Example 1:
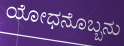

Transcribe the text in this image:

ಯೋಧನೊಬ್ಬನು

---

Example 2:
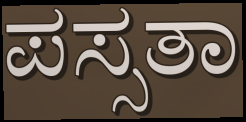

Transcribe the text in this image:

ಪಸ್ಸತಾ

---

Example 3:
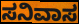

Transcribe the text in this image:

ಸನಿವಾಸ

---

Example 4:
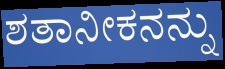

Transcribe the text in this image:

ಶತಾನೀಕನನ್ನು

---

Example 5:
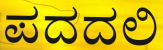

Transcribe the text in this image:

ಪದದಲಿ